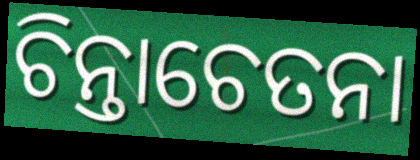
ଚିନ୍ତାଚେତନା